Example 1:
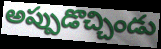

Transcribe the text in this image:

అప్పుడొచ్చిండు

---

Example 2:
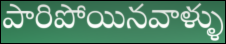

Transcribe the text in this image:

పారిపోయినవాళ్ళు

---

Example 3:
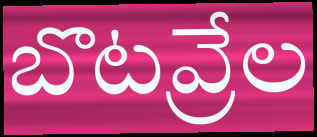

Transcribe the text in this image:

బొటవ్రేల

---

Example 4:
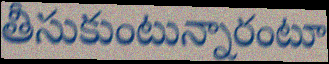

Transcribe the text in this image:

తీసుకుంటున్నారంటూ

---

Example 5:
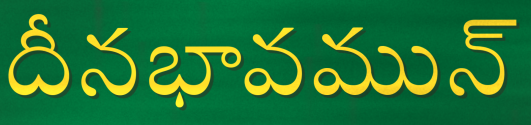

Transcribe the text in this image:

దీనభావమున్